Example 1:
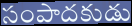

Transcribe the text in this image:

సంపాదకుడు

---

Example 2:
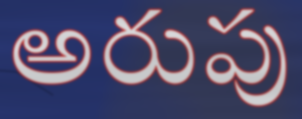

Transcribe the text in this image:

అరుపు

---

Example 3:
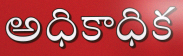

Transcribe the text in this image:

అధికాధిక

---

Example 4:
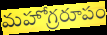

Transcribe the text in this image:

మహోగ్రరూపం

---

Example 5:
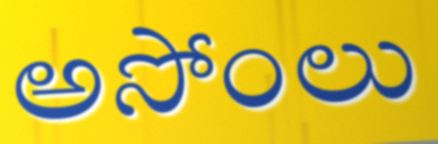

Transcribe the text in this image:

అసోంలు